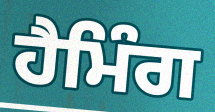
ਹੈਮਿੰਗ